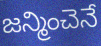
జన్మించెనే